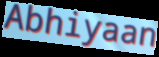
Abhiyaan